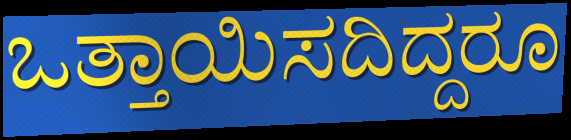
ಒತ್ತಾಯಿಸದಿದ್ದರೂ